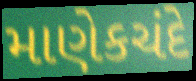
માણેકચંદે